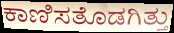
ಕಾಣಿಸತೊಡಗಿತ್ತು